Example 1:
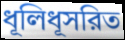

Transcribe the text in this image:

ধূলিধূসরিত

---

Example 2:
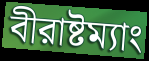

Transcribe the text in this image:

বীরাষ্টম্যাং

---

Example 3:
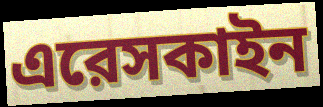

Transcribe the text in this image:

এরেসকাইন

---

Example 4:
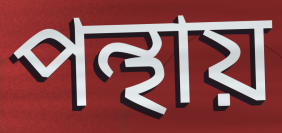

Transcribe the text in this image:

পন্থায়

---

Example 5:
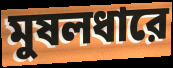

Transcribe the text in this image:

মুষলধারে